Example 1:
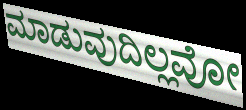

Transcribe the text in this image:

ಮಾಡುವುದಿಲ್ಲವೋ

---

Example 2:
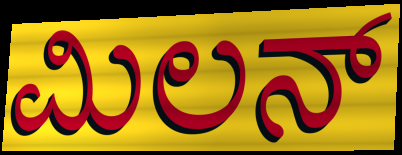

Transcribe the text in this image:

ಮಿಲನ್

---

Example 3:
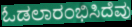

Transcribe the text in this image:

ಓಡಲಾರಂಭಿಸಿದೆವು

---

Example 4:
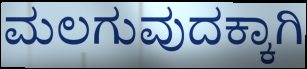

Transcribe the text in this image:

ಮಲಗುವುದಕ್ಕಾಗಿ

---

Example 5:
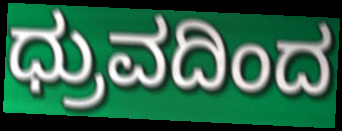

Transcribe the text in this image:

ಧ್ರುವದಿಂದ